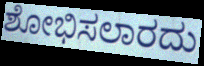
ಶೋಭಿಸಲಾರದು